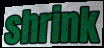
shrink